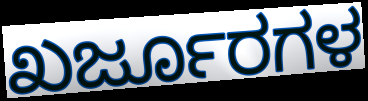
ಖರ್ಜೂರಗಳ